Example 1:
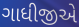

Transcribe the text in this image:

ગાધીજીએ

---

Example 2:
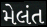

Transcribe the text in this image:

મેલંત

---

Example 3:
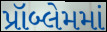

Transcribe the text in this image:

પ્રૉબ્લેમમાં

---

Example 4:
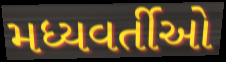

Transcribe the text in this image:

મધ્યવર્તીઓ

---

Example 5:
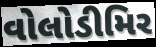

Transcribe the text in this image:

વોલોડીમિર